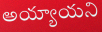
అయ్యాయని